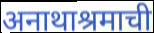
अनाथाश्रमाची